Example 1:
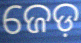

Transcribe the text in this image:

ଜେଡ଼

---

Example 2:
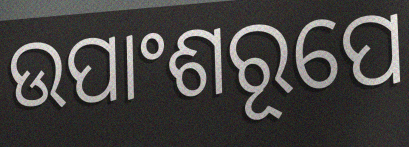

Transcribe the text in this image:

ଉପାଂଶରୂପେ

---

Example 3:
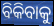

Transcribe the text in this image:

ବିକିବାକୁ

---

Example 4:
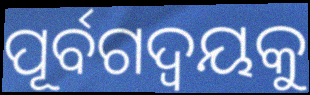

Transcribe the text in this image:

ପୂର୍ବଗଦ୍ଵୟକୁ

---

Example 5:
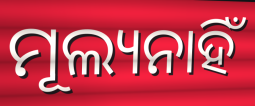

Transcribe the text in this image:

ମୂଲ୍ୟନାହିଁ